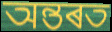
অন্তৰত